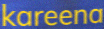
kareena